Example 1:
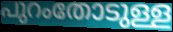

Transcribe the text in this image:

പുറംതോടുള്ള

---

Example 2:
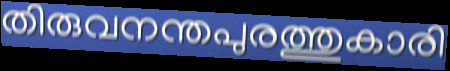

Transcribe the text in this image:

തിരുവനന്തപുരത്തുകാരി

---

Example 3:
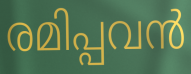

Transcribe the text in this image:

രമിപ്പവൻ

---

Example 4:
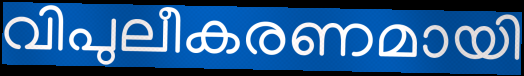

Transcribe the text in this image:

വിപുലീകരണമായി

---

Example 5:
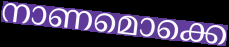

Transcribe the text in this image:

നാണമൊക്കെ